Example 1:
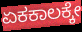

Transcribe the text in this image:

ಏಕಕಾಲಕ್ಕೇ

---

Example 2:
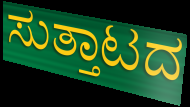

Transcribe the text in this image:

ಸುತ್ತಾಟದ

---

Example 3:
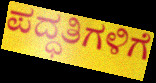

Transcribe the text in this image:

ಪದ್ಧತಿಗಳಿಗೆ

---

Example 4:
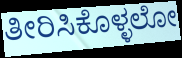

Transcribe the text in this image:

ತೀರಿಸಿಕೊಳ್ಳಲೋ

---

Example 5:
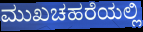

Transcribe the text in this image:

ಮುಖಚಹರೆಯಲ್ಲಿ